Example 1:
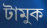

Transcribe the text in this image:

টামুক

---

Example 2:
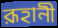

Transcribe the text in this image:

রূহানী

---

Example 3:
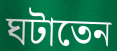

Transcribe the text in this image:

ঘটাতেন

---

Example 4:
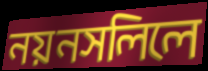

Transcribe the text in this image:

নয়নসলিলে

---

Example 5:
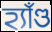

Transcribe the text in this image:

হ্যাঁণ্ড